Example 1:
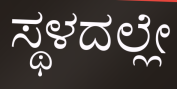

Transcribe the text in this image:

ಸ್ಥಳದಲ್ಲೇ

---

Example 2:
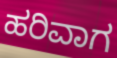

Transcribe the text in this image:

ಹರಿವಾಗ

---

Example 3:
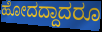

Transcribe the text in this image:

ಹೋದದ್ದಾದರೂ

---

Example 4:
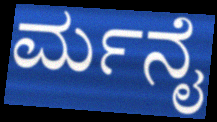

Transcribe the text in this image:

ರ್ಮನೈ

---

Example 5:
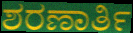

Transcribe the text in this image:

ಶರಣಾರ್ತಿ